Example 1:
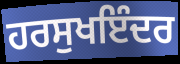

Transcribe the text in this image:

ਹਰਸੁਖਇੰਦਰ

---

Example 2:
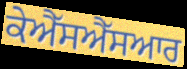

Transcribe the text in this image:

ਕੇਐੱਸਐੱਸਆਰ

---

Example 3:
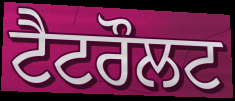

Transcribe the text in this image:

ਟੈਟਰੌਲਟ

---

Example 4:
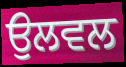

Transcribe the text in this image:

ਉਲਵਲ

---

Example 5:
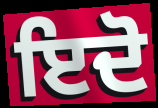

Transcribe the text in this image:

ਇਦੋ